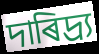
দাৰিদ্ৰ্য